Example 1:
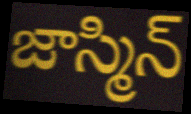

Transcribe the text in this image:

జాస్మిన్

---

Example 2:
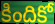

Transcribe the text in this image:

కిందికో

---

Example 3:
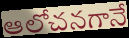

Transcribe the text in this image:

ఆలోచనగానే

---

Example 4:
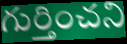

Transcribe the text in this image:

గుర్తించని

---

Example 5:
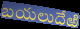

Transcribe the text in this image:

బయలుదేఱి